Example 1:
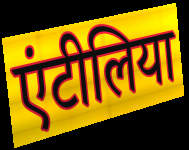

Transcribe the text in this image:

एंटीलिया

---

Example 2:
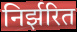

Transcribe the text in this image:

निर्झरित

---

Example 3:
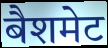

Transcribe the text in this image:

बैशमेट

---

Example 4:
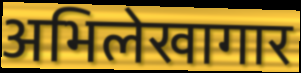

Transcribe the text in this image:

अभिलेखागार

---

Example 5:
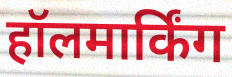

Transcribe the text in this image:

हॉलमार्किंग